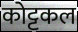
कोट्टकल